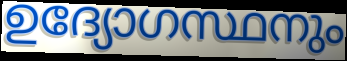
ഉദ്യോഗസ്ഥനും